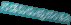
ನಡೆದಿರುವುದಂತೂ